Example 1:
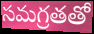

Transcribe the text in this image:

సమగ్రతతో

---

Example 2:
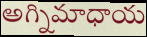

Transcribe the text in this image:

అగ్నిమాధాయ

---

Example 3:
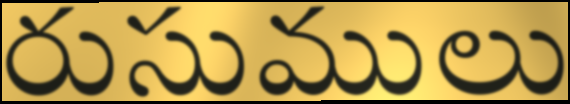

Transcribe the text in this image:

రుసుములు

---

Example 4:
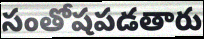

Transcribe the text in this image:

సంతోషపడతారు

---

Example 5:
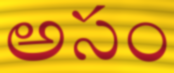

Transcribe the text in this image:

అసం